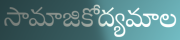
సామాజికోద్యమాల